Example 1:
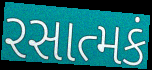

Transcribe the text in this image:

રસાત્મકં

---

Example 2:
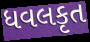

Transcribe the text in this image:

ધવલકૃત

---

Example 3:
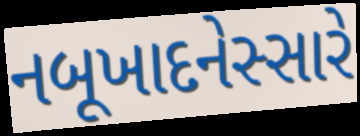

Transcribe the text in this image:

નબૂખાદનેસ્સારે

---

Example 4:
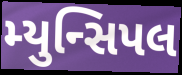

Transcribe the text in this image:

મ્યુન્સિપલ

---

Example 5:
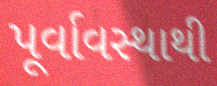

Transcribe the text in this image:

પૂર્વાવસ્થાથી